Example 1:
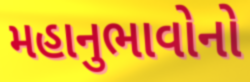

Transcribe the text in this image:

મહાનુભાવોનો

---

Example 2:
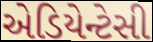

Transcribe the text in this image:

એડિયેન્ટેસી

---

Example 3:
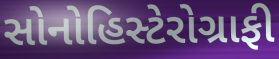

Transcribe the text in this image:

સોનોહિસ્ટેરોગ્રાફી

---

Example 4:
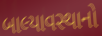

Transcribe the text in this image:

બાલ્યાવસ્થાનો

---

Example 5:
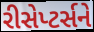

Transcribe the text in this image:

રીસેપ્ટર્સને